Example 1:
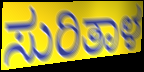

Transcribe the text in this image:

ಸುರಿತಾಳ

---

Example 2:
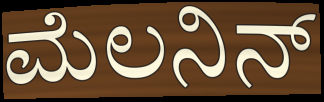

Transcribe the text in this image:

ಮೆಲನಿನ್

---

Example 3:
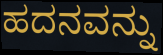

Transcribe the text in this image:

ಹದನವನ್ನು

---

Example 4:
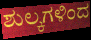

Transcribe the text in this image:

ಶುಲ್ಕಗಳಿಂದ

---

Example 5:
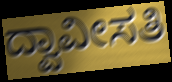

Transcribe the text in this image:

ದ್ವಾವೀಸತಿ